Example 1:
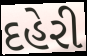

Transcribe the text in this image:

દહેરી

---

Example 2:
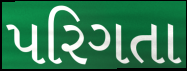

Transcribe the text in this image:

પરિગતા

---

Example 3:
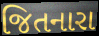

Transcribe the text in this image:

જિતનારા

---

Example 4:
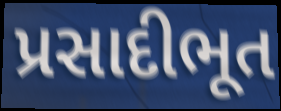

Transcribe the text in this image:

પ્રસાદીભૂત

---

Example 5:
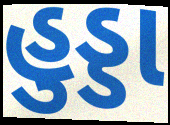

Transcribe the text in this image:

હુડ્ડા